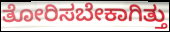
ತೋರಿಸಬೇಕಾಗಿತ್ತು